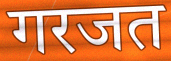
गरजत